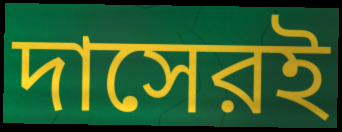
দাসেরই